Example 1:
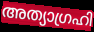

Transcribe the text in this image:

അത്യാഗ്രഹി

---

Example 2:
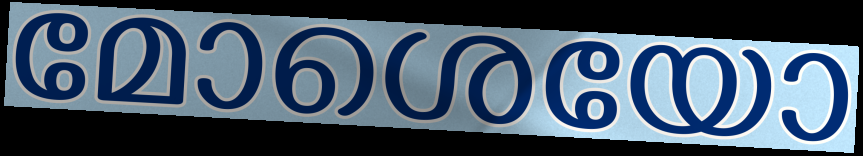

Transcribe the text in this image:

മോശെയോ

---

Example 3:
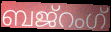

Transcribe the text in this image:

ബജ്റംഗ്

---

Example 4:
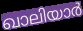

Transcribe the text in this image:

ഖാലിയാർ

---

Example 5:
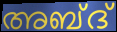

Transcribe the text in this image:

അബ്ദ്